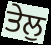
ਤੇਲੁ